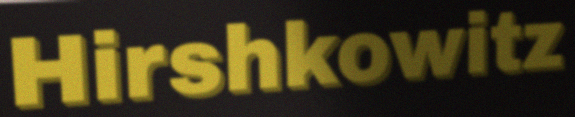
Hirshkowitz